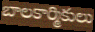
బాలకార్మికులు